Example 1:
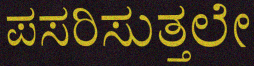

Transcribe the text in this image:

ಪಸರಿಸುತ್ತಲೇ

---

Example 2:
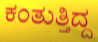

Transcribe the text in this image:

ಕಂತುತ್ತಿದ್ದ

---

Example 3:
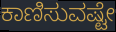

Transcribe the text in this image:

ಕಾಣಿಸುವಷ್ಟೇ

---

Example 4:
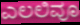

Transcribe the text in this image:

ಎಲಲಿವೂ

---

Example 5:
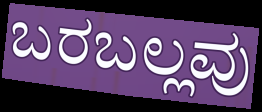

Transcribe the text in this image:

ಬರಬಲ್ಲವು